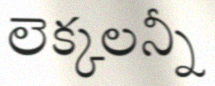
లెక్కలన్నీ